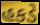
હકડે